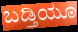
ಬಡ್ತಿಯೂ